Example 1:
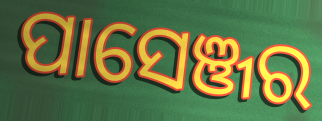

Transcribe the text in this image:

ପାସେଞ୍ଜର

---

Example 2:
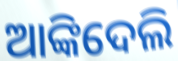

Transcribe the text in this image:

ଆଙ୍କିଦେଲି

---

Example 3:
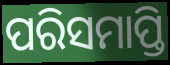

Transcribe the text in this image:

ପରିସମାପ୍ତି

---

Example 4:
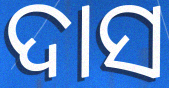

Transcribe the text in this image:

ଦାସ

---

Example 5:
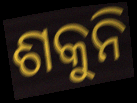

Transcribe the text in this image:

ଶକୁନି